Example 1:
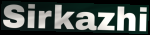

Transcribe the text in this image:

Sirkazhi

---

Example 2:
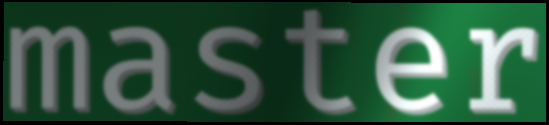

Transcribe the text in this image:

master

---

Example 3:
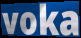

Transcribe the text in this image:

voka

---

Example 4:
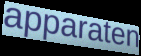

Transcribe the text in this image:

apparaten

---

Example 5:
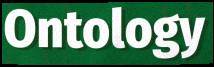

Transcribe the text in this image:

Ontology